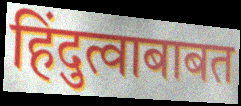
हिंदुत्वाबाबत